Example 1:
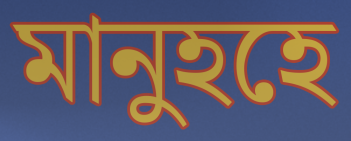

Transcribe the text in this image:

মানুহহে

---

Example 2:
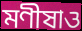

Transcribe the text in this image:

মণীষাও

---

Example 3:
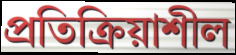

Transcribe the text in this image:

প্ৰতিক্ৰিয়াশীল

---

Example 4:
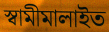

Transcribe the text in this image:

স্বামীমালাইত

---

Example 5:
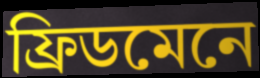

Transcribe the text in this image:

ফ্ৰিডমেনে